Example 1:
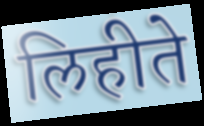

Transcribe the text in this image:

लिहीते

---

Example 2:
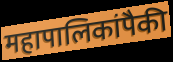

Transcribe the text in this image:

महापालिकांपैकी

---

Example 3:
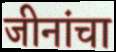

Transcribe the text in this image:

जीनांचा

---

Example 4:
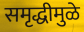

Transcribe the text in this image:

समृद्धीमुळे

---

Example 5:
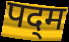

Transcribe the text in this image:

पद्‌म